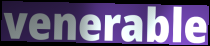
venerable